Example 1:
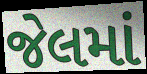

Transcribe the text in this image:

જેલમાં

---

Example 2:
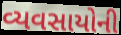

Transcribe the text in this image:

વ્યવસાયોની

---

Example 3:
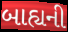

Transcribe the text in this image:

બાહ્યની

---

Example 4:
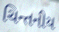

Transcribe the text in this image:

ચિન્તનીય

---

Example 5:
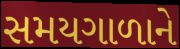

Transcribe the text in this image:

સમયગાળાને